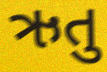
ઋતુ